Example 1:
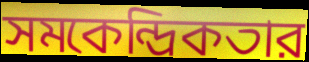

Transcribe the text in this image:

সমকেন্দ্রিকতার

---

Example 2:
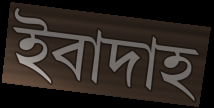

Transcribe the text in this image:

ইবাদাহ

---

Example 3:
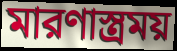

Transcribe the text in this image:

মারণাস্ত্রময়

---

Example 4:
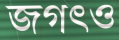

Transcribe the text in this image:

জগৎও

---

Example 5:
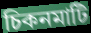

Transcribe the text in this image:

চিকনমাটি